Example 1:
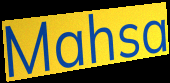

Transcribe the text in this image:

Mahsa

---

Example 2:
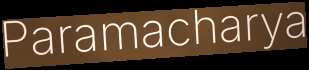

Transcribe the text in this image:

Paramacharya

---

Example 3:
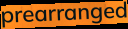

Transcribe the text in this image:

prearranged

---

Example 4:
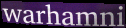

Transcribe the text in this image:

warhamni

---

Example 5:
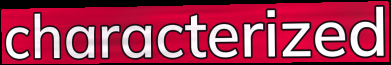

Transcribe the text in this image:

characterized